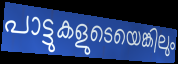
പാട്ടുകളുടെയെങ്കിലും